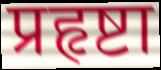
प्रहृष्टा